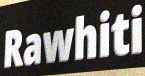
Rawhiti